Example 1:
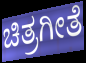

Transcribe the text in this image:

ಚಿತ್ರಗೀತೆ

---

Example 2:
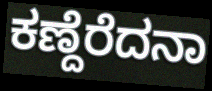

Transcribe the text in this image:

ಕಣ್ದೆರೆದನಾ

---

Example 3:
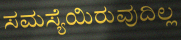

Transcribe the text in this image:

ಸಮಸ್ಯೆಯಿರುವುದಿಲ್ಲ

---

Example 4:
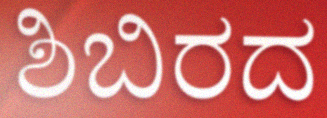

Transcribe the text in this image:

ಶಿಬಿರದ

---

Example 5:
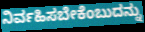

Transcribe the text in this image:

ನಿರ್ವಹಿಸಬೇಕೆಂಬುದನ್ನು